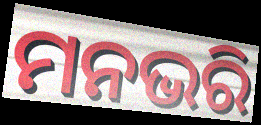
ମନଭରି